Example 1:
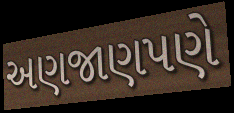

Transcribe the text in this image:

અણજાણપણે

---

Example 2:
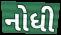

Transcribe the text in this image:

નોધી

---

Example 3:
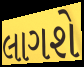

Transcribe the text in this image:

લાગશે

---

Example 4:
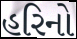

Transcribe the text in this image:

હરિનો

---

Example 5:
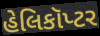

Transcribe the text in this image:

હેલિકૉપ્ટર